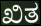
ಖಿತ